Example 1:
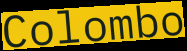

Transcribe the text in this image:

Colombo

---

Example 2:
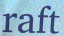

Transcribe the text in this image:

raft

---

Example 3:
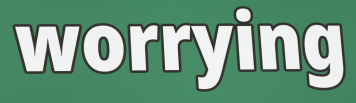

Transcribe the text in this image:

worrying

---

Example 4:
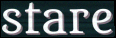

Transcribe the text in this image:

stare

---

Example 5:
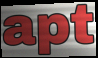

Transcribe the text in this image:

apt